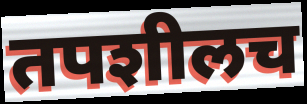
तपशीलच